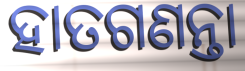
ହାତଗଣନ୍ତା